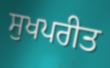
ਸੁਖਪਰੀਤ